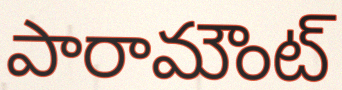
పారామౌంట్